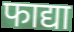
फाद्या